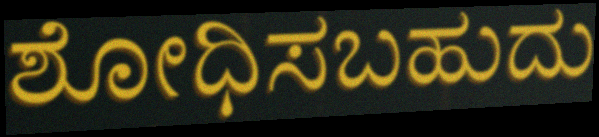
ಶೋಧಿಸಬಹುದು